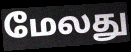
மேலது